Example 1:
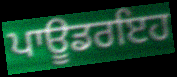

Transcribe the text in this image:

ਪਾਊਡਰਇਹ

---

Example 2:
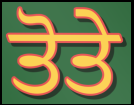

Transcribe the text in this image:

ਤੋਤੇ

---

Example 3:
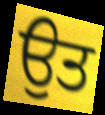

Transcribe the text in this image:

ਉਤ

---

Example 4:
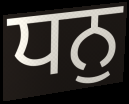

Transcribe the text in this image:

ਧਨੁ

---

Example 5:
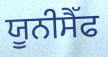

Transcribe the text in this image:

ਯੂਨੀਸੈੱਫ